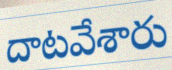
దాటవేశారు